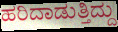
ಹರಿದಾಡುತ್ತಿದ್ದು